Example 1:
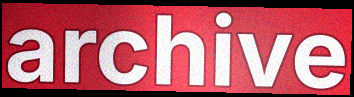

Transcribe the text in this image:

archive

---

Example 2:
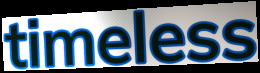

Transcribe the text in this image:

timeless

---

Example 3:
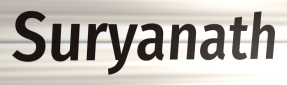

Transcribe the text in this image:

Suryanath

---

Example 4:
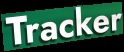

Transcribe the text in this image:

Tracker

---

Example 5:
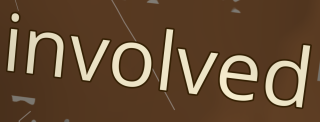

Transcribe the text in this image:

involved